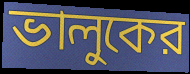
ভালুকের